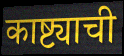
काष्ट्याची